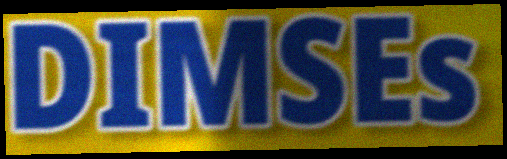
DIMSEs